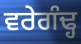
ਵਰੇਗੰਢ੍ਹ